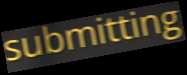
submitting